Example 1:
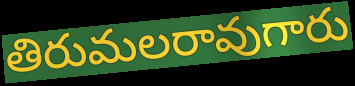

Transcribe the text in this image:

తిరుమలరావుగారు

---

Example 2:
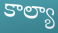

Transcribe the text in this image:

కాల్యా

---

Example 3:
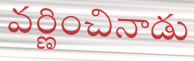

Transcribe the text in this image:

వర్ణించినాడు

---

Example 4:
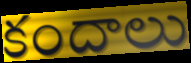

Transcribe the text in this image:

కందాలు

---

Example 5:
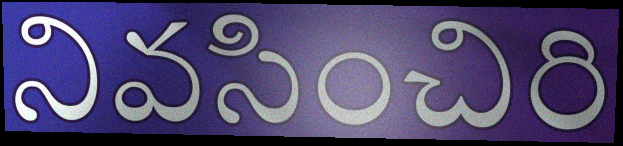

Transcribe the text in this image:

నివసించిరి